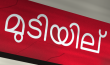
മുടിയില്